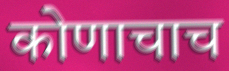
कोणाचाच